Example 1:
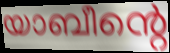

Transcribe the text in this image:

യാബീന്റെ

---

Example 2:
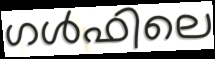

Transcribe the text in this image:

ഗൾഫിലെ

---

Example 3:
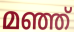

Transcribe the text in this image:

മഞ്ഞ്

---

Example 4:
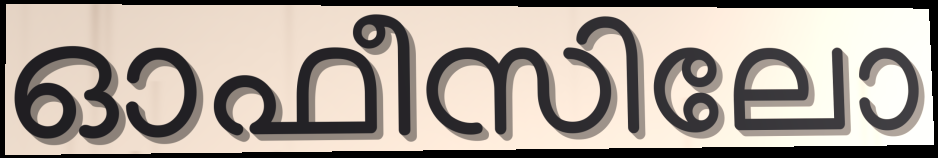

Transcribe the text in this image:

ഓഫീസിലോ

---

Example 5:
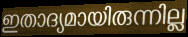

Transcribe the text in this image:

ഇതാദ്യമായിരുന്നില്ല